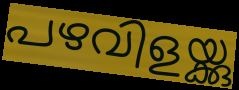
പഴവിളയ്ക്കു